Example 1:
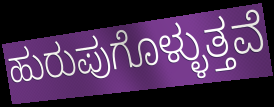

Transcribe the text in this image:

ಹುರುಪುಗೊಳ್ಳುತ್ತವೆ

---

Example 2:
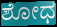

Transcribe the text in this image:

ಶೋಧ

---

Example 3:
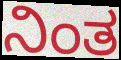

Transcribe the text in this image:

ನಿಂತ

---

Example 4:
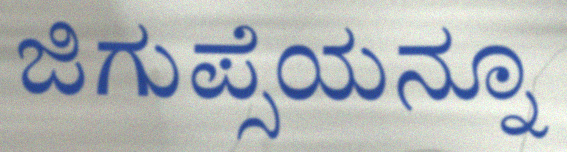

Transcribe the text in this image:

ಜಿಗುಪ್ಸೆಯನ್ನೂ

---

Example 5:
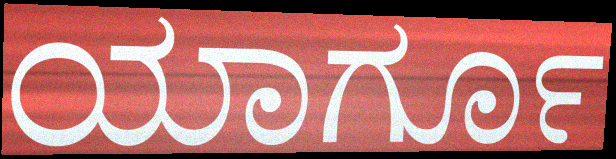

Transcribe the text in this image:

ಯಾರ್ಗೂ